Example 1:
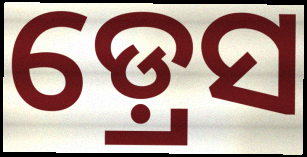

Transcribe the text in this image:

ଡ଼୍ରେସ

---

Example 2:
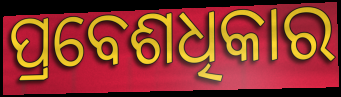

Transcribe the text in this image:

ପ୍ରବେଶଧିକାର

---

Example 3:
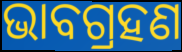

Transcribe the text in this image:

ଭାବଗ୍ରହଣ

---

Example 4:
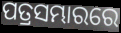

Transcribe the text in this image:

ପତ୍ରସମ୍ଭାରରେ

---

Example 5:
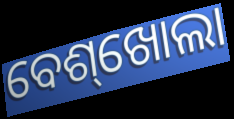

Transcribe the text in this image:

ବେଶ୍‌ଖୋଲା